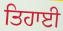
ਤਿਹਾਈ